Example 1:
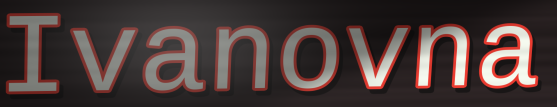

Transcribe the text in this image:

Ivanovna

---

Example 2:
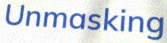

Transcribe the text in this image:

Unmasking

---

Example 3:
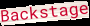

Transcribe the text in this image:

Backstage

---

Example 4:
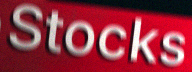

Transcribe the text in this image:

Stocks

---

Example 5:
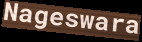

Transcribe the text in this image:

Nageswara